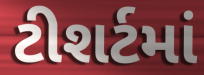
ટીશર્ટમાં